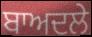
ਬਾਅਦਲੇ